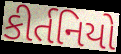
કીર્તનિયો